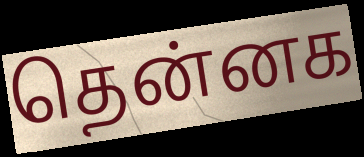
தென்னக